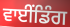
ਵਾਈਂਡਿੰਗ